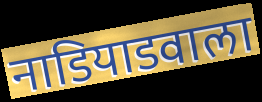
नाडियाडवाला